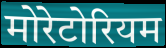
मोरेटोरियम